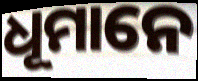
ଧୂମାନେ